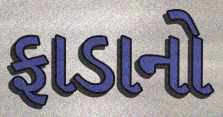
ફાડાનો